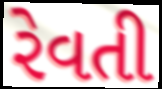
રેવતી